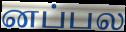
னப்பல